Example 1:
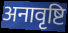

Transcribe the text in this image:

अनावृष्टि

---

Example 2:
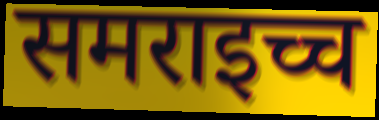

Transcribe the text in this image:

समराइच्च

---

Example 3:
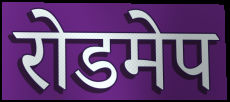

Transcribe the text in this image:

रोडमेप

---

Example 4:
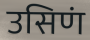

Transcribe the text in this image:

उसिणं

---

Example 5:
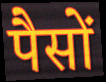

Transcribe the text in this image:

पैसों